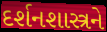
દર્શનશાસ્ત્રને